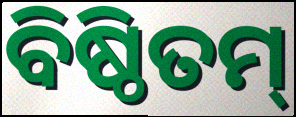
ବିଷ୍ଠିତମ୍